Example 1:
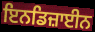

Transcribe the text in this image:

ਇਨਡਿਜ਼ਾਈਨ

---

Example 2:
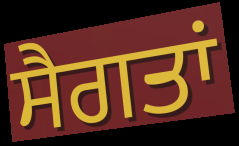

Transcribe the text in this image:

ਸੈਗਤਾਂ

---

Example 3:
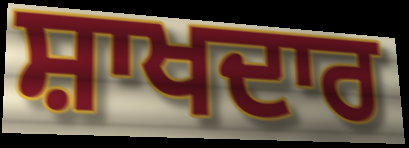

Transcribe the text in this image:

ਸ਼ਾਖਦਾਰ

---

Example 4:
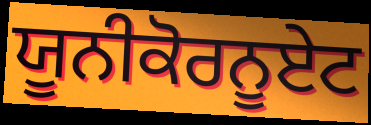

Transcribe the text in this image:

ਯੂਨੀਕੋਰਨੂਏਟ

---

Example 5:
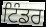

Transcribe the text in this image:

ਟਿੰਡਰ